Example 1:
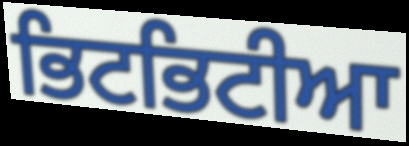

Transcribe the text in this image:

ਭਿਟਭਿਟੀਆ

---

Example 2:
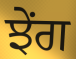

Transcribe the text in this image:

ਝੇਂਗ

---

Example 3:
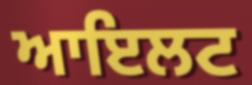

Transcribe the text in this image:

ਆਇਲਟ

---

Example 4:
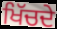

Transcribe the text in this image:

ਖਿੱਚਦੇ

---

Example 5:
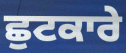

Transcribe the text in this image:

ਛੁਟਕਾਰੇ